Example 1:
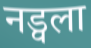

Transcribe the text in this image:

नड्वला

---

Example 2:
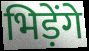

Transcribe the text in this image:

भिड़ेंगे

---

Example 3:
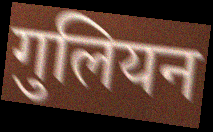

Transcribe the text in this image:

गुलियन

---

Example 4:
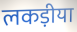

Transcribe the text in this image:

लकड़ीया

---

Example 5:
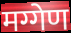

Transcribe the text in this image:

मग्गेण